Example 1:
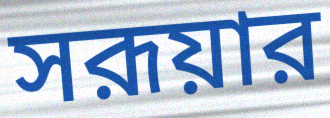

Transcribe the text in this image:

সরূয়ার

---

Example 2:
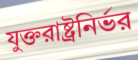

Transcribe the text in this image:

যুক্তরাষ্ট্রনির্ভর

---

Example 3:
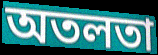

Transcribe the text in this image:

অতলতা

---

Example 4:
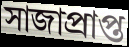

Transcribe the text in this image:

সাজাপ্রাপ্ত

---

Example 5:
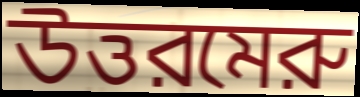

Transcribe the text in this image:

উত্তরমেরু